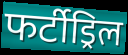
फर्टीड्रिल